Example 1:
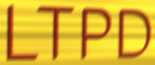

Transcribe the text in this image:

LTPD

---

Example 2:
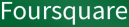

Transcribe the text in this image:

Foursquare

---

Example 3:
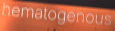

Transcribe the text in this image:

hematogenous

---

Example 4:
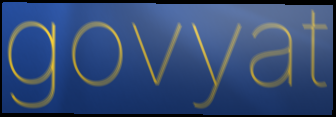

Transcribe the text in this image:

govyat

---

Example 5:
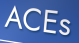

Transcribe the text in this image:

ACEs